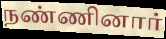
நண்ணினார்